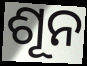
ଶୂନ